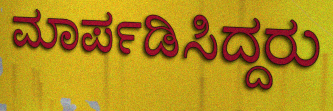
ಮಾರ್ಪಡಿಸಿದ್ದರು